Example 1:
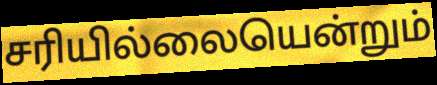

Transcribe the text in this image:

சரியில்லையென்றும்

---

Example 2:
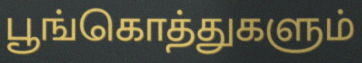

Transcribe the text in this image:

பூங்கொத்துகளும்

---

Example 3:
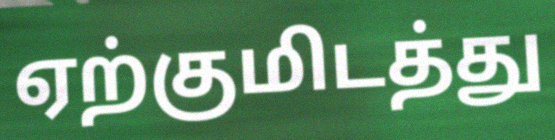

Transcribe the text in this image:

ஏற்குமிடத்து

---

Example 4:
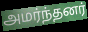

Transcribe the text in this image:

அமர்ந்தனர்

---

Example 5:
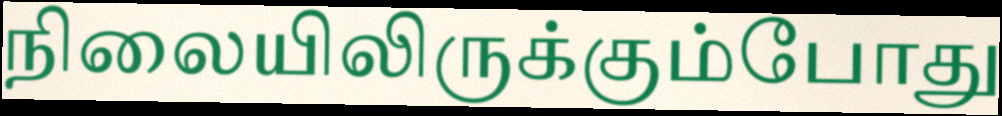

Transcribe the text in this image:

நிலையிலிருக்கும்போது